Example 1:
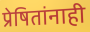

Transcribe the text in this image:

प्रेषितांनाही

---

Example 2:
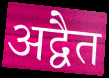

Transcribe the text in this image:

अद्वैत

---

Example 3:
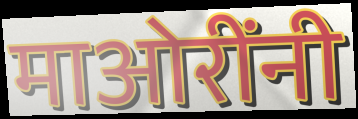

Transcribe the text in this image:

माओरींनी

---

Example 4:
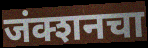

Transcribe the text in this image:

जंक्शनचा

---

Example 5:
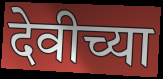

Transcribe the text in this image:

देवीच्या